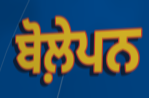
ਬੋਲ਼ੇਪਨ